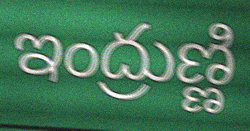
ఇంద్రుణ్ణి